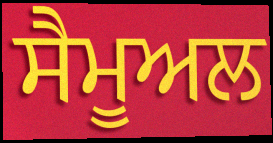
ਸੈਮੂਅਲ